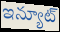
ఇన్యూట్